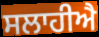
ਸਲਾਹੀਐ